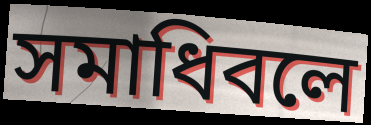
সমাধিবলে